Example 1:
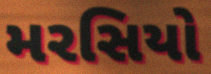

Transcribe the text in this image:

મરસિયો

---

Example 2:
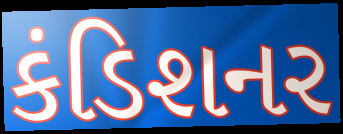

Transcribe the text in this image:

કંડિશનર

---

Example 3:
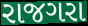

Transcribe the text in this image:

રાજગરા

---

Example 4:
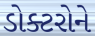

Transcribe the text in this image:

ડોક્ટરોને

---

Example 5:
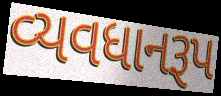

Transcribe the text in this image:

વ્યવધાનરૂપ